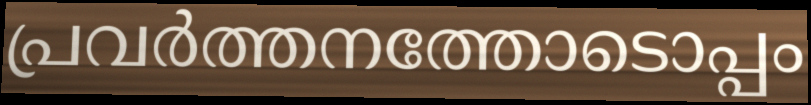
പ്രവർത്തനത്തോടൊപ്പം